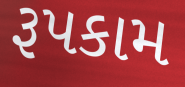
રૂપકામ